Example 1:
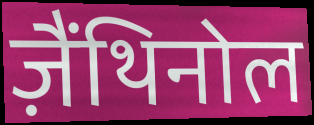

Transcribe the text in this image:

ज़ैंथिनोल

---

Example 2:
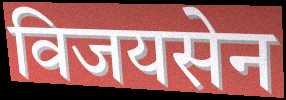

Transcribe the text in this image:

विजयसेन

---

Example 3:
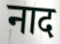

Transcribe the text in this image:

नाद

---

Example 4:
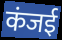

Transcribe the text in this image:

कंजई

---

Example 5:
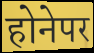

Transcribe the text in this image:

होनेपर